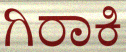
ಗಿರಾಕಿ